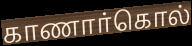
காணார்கொல்